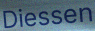
Diessen